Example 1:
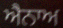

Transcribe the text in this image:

ਐਨਾਅ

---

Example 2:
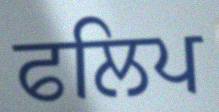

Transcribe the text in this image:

ਫਲਿਪ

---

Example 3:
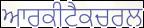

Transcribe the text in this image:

ਆਰਕੀਟੈਕਚਰਲ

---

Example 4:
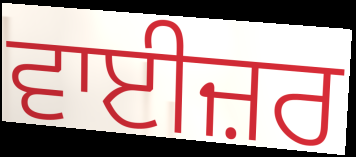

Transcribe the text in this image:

ਵਾਈਜ਼ਰ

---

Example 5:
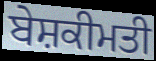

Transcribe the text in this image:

ਬੇਸ਼ਕੀਮਤੀ